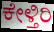
ಕೇಳ್ತಿರಿ